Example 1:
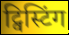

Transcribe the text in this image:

ट्विस्टिंग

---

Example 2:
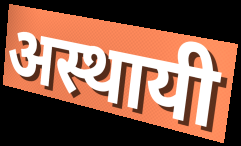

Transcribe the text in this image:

अस्थायी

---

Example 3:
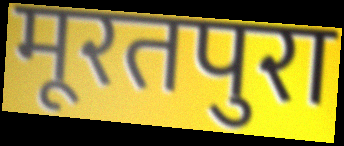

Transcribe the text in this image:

मूरतपुरा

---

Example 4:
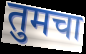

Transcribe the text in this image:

तुमचा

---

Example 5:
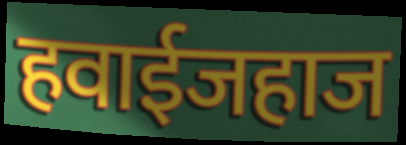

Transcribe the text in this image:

हवाईजहाज